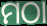
ମଠା